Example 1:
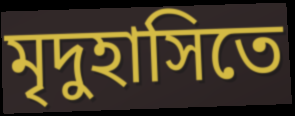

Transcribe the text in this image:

মৃদুহাসিতে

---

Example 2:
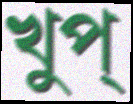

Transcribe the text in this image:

খুপ্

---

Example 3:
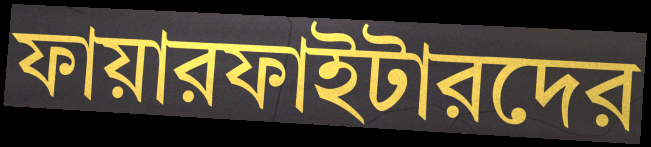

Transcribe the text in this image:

ফায়ারফাইটারদের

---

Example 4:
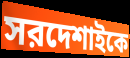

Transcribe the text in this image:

সরদেশাইকে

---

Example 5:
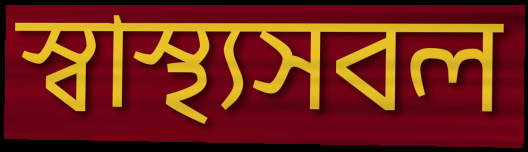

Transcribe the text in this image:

স্বাস্থ্যসবল